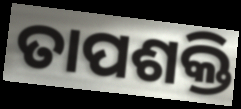
ତାପଶକ୍ତି